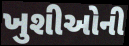
ખુશીઓની